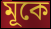
মূকে